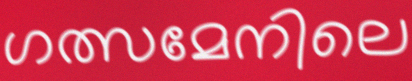
ഗത്സമേനിലെ